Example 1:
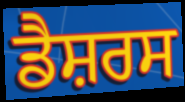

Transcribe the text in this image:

ਡੈਸ਼ਰਸ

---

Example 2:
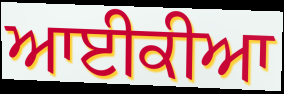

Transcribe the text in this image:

ਆਈਕੀਆ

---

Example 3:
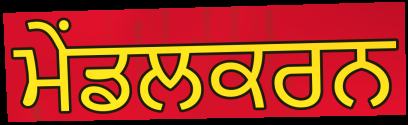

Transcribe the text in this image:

ਮੇਂਡਲਕਰਨ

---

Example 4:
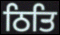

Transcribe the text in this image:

ਠਿਤਿ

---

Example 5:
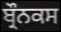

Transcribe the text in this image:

ਬ੍ਰੌਨਕਸ